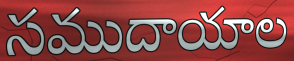
సముదాయాల